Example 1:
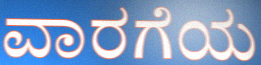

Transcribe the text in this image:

ವಾರಗೆಯ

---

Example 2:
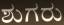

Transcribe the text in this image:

ಶುಗರು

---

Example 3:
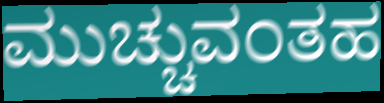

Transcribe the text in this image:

ಮುಚ್ಚುವಂತಹ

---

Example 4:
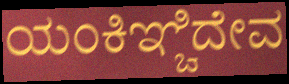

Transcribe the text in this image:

ಯಂಕಿಞ್ಚಿದೇವ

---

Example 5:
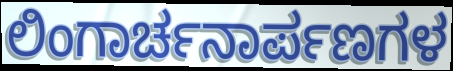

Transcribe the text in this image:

ಲಿಂಗಾರ್ಚನಾರ್ಪಣಗಳ